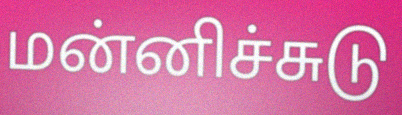
மன்னிச்சுடு